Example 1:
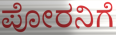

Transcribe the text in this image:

ಪೋರನಿಗೆ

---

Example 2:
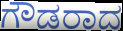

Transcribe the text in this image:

ಗೌಡರಾದ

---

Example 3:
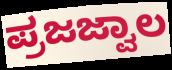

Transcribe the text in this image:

ಪ್ರಜಜ್ವಾಲ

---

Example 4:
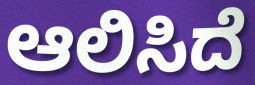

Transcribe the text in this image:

ಆಲಿಸಿದೆ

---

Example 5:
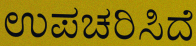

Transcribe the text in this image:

ಉಪಚರಿಸಿದೆ